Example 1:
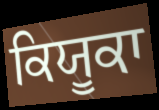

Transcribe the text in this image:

ਕਿਯੂਕਾ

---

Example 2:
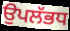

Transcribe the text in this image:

ਉਪਲੱਭਧ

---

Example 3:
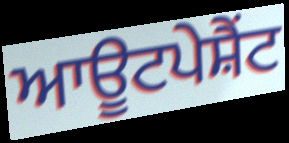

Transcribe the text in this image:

ਆਊਟਪੇਸ਼ੈਂਟ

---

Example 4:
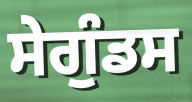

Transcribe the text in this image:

ਸੇਗੁੰਡਸ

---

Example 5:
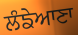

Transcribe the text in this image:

ਲੰਙੇਆਣਾ